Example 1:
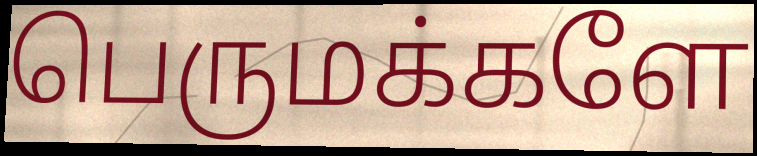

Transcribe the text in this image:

பெருமக்களே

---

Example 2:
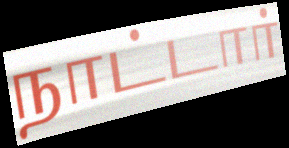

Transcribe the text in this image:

நாட்டார்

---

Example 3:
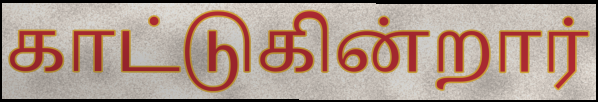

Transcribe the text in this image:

காட்டுகின்றார்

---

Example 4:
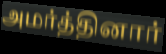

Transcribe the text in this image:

அமர்த்தினார்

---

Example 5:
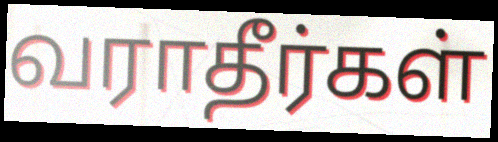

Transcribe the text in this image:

வராதீர்கள்